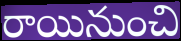
రాయినుంచి